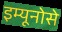
इम्यूनोसे